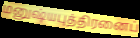
மனுஷ்யபுத்திரனைப்